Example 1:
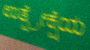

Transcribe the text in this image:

ಉತ್ಪ್ರೇಕ್ಷೆಯ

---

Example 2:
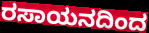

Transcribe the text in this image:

ರಸಾಯನದಿಂದ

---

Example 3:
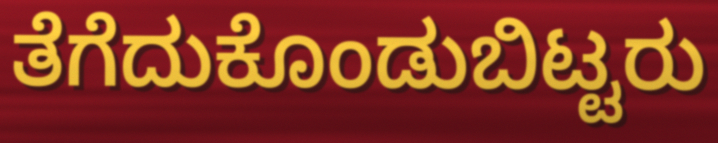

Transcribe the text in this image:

ತೆಗೆದುಕೊಂಡುಬಿಟ್ಟರು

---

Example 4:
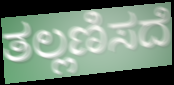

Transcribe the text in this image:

ತಲ್ಲಣಿಸದೆ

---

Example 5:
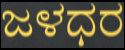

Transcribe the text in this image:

ಜಳಧರ